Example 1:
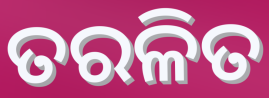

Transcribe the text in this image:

ତରଳିତ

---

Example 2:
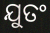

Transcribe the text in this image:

ଯୁତଂ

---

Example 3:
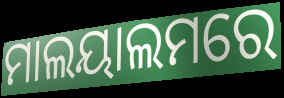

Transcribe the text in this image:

ମାଲୟାଲମରେ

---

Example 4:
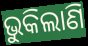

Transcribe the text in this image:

ଭୁକିଲାଣି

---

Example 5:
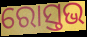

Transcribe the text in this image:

ରୋସ୍ତଭ